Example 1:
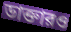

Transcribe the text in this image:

ডাক্তারও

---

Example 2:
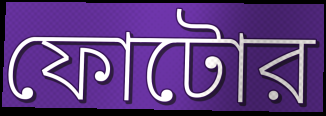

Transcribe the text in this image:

ফোটোর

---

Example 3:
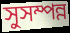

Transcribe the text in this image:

সুসম্পন্ন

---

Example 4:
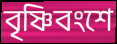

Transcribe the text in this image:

বৃষ্ণিবংশে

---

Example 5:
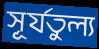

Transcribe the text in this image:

সূর্যতুল্য